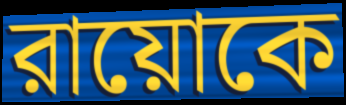
রায়োকে